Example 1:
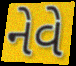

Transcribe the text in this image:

નેવે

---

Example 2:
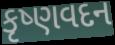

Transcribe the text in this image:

કૃષ્ણવદન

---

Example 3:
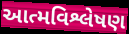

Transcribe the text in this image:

આત્મવિશ્લેષણ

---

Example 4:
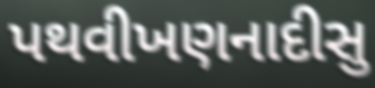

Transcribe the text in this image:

પથવીખણનાદીસુ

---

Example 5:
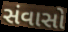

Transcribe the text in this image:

સંવાસો